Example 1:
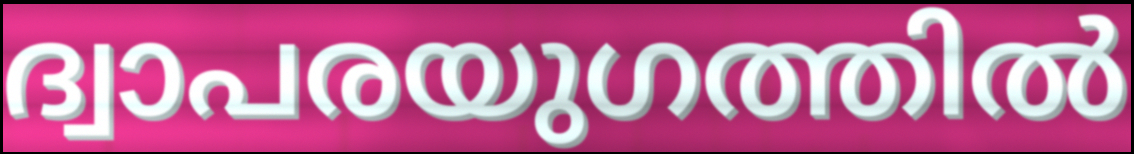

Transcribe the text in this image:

ദ്വാപരയുഗത്തിൽ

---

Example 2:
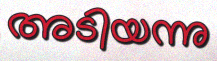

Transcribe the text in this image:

അടിയന്നു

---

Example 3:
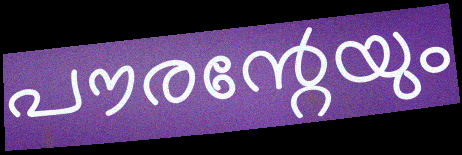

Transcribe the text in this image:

പൗരന്റേയും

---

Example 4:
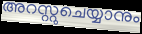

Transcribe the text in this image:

അറസ്റ്റുചെയ്യാനും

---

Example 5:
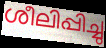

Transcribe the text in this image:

ശീലിപ്പിച്ചു